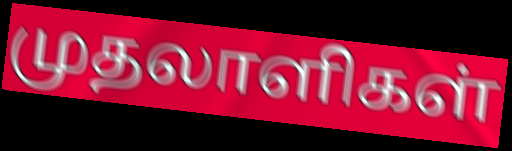
முதலாளிகள்